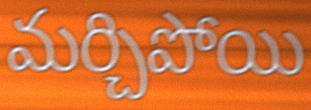
మర్చిపోయి